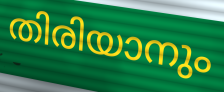
തിരിയാനും